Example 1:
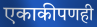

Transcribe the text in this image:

एकाकीपणही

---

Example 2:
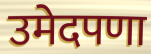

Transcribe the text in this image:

उमेदपणा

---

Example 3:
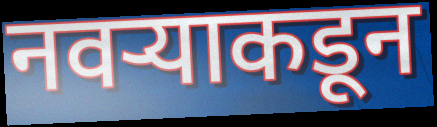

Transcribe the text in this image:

नवऱ्याकडून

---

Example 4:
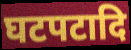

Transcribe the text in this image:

घटपटादि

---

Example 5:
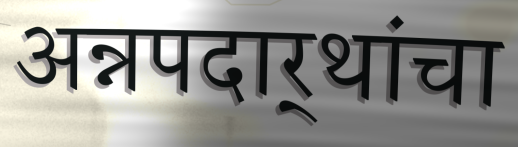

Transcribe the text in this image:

अन्नपदार्थांचा